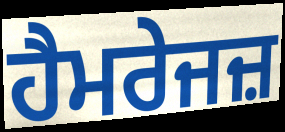
ਹੈਮਰੇਜਜ਼